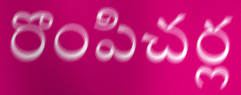
రొంపిచర్ల